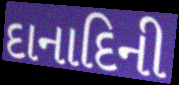
દાનાદિની